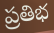
ప్రతిభ